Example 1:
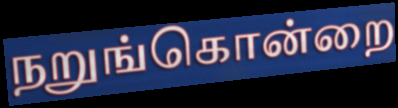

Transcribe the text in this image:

நறுங்கொன்றை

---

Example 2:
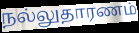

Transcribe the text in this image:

நல்லுதாரணம்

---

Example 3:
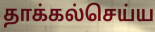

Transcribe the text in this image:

தாக்கல்செய்ய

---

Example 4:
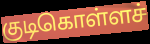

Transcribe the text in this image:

குடிகொள்ளச்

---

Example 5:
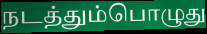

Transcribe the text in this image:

நடத்தும்பொழுது